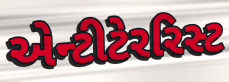
એન્ટીટેરરિસ્ટ